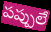
పప్పులే